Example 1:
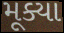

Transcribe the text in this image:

મૂક્યા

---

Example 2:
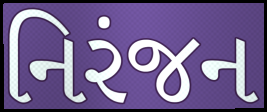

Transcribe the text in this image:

નિરંજન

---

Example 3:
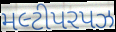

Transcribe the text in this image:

મલ્ટીપરપઝ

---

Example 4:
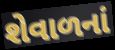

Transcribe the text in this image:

શેવાળનાં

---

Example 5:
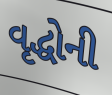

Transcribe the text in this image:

વૃદ્ધોની